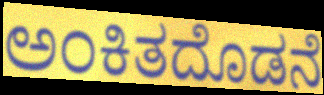
ಅಂಕಿತದೊಡನೆ